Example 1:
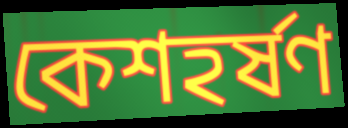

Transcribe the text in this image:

কেশহর্ষণ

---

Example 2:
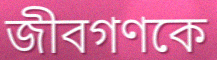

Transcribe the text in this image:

জীবগণকে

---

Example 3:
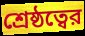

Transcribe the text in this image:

শ্রেষ্ঠত্বের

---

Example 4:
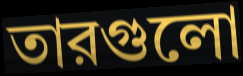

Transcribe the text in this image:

তারগুলো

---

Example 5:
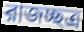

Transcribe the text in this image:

রাজচ্ছত্র